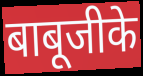
बाबूजीके